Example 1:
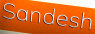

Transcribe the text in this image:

Sandesh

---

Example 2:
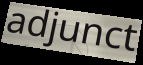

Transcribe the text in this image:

adjunct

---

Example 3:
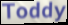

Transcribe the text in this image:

Toddy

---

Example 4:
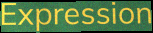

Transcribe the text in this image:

Expression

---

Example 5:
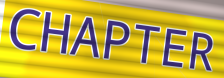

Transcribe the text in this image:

CHAPTER